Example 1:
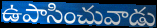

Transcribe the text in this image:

ఉపాసించువాడు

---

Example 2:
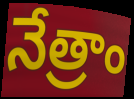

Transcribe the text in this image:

నేత్రాం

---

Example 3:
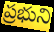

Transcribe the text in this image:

ప్రభుని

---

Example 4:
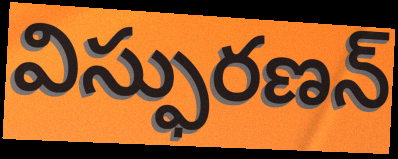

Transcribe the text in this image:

విస్ఫురణన్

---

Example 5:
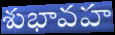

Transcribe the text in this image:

శుభావహ